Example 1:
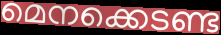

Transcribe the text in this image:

മെനക്കെടണ്ട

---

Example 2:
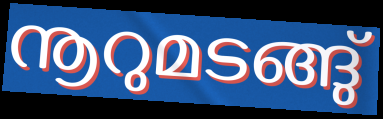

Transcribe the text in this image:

നൂറുമടങ്ങു്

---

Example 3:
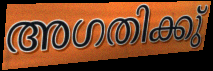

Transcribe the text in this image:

അഗതിക്കു്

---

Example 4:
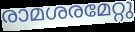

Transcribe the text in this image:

രാമശരമേറ്റു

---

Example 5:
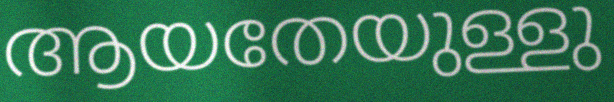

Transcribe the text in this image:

ആയതേയുള്ളു